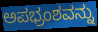
ಅಪಭ್ರಂಶವನ್ನು